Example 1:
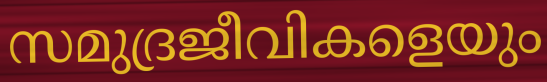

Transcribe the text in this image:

സമുദ്രജീവികളെയും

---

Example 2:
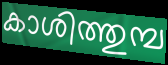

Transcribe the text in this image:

കാശിത്തുമ്പ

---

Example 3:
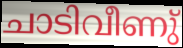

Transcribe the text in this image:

ചാടിവീണു്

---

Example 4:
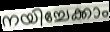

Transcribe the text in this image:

നയിച്ചേക്കാം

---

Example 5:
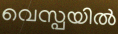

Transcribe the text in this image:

വെസ്പയിൽ